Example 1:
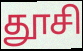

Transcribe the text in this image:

தூசி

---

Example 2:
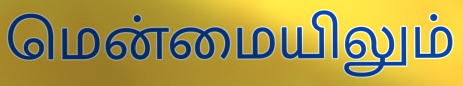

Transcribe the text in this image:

மென்மையிலும்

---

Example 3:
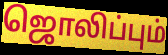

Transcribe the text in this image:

ஜொலிப்பும்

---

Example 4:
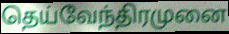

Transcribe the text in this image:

தெய்வேந்திரமுனை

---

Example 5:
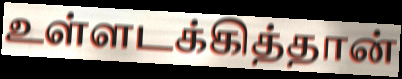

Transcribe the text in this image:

உள்ளடக்கித்தான்